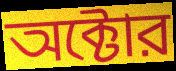
অক্টোর